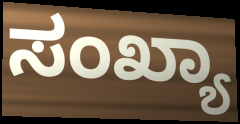
ಸಂಖ್ಯಾ